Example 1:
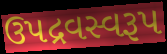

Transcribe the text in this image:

ઉપદ્રવસ્વરૂપ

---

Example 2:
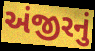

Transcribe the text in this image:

અંજીરનું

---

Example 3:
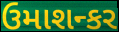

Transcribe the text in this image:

ઉમાશન્કર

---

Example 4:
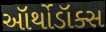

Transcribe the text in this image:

ઑર્થોડૉક્સ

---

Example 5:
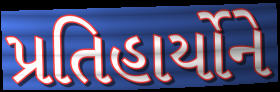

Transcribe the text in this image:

પ્રતિહાર્યોને